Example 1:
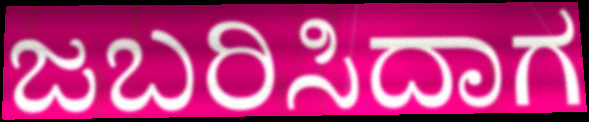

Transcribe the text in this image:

ಜಬರಿಸಿದಾಗ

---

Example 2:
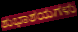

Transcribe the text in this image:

ಶುಭಾಶಯಗಳು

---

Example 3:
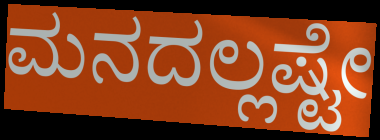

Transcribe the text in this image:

ಮನದಲ್ಲಷ್ಟೇ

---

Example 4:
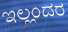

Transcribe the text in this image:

ಇಲ್ಲಂದರ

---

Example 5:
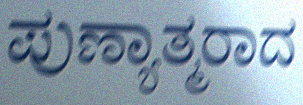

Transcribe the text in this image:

ಪುಣ್ಯಾತ್ಮರಾದ